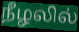
நீழலில்